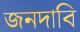
জনদাবি